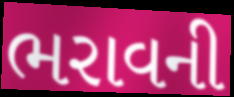
ભરાવની